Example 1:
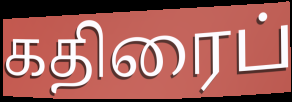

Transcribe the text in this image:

கதிரைப்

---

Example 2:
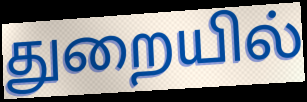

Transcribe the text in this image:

துறையில்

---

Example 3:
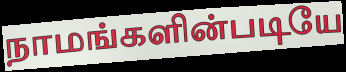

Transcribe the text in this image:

நாமங்களின்படியே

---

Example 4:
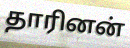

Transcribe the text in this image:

தாரினன்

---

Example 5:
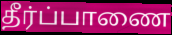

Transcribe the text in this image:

தீர்ப்பாணை